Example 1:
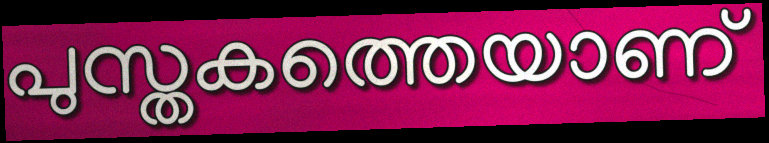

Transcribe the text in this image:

പുസ്തകത്തെയാണ്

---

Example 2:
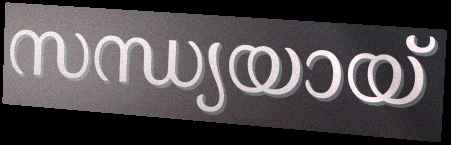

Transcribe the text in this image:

സന്ധ്യയായ്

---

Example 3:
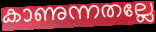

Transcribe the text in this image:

കാണുന്നതല്ലേ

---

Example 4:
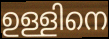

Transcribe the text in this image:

ഉള്ളിനെ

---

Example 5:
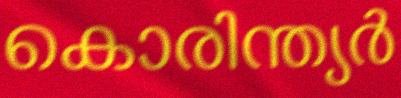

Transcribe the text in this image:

കൊരിന്ത്യർ